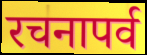
रचनापर्व